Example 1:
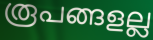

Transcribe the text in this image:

രൂപങ്ങളല്ല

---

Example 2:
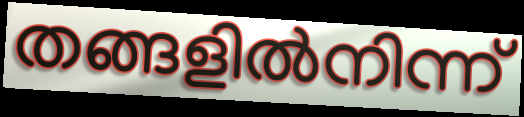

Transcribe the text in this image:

തങ്ങളിൽനിന്ന്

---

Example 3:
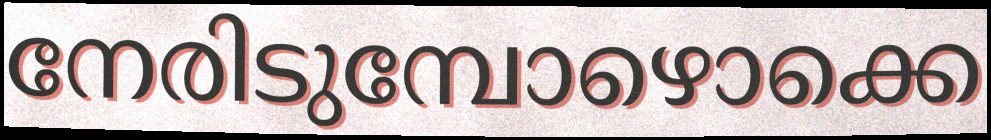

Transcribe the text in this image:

നേരിടുമ്പോഴൊക്കെ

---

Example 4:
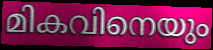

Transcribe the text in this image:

മികവിനെയും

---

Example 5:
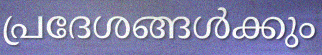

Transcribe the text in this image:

പ്രദേശങ്ങൾക്കും